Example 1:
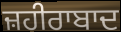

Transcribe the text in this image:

ਜ਼ਹੀਰਾਬਾਦ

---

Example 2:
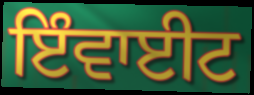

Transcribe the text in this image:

ਇੰਵਾਈਟ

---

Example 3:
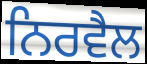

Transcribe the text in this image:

ਨਿਰਵੈਲ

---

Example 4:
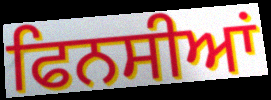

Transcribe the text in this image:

ਫਿਨਸੀਆਂ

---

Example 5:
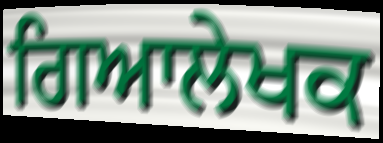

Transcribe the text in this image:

ਗਿਆਲੇਖਕ